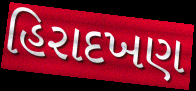
હિરાદખણ